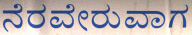
ನೆರವೇರುವಾಗ